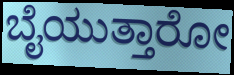
ಬೈಯುತ್ತಾರೋ